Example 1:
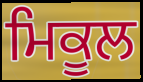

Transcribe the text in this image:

ਮਿਕੂਲ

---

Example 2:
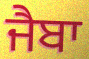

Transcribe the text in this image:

ਜੈਬਾ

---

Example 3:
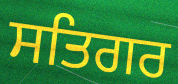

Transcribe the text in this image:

ਸਤਿਗਰ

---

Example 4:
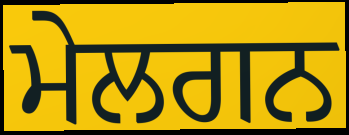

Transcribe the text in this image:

ਮੇਲਗਨ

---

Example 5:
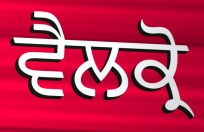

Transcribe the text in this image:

ਵੈਲਕ੍ਰੋ